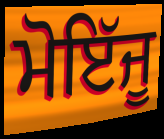
ਮੋਇੱਜੂ